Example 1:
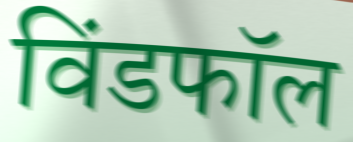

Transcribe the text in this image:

विंडफॉल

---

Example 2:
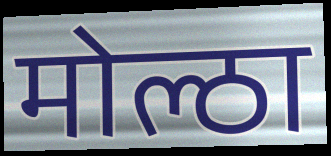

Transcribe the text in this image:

मोल्ठा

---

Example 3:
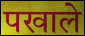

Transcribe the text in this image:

पखाले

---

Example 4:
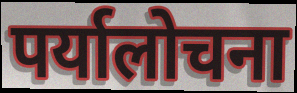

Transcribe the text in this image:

पर्यालोचना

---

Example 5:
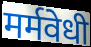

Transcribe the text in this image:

मर्मवेधी